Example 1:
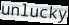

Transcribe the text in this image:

unlucky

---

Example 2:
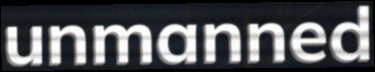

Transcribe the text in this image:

unmanned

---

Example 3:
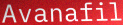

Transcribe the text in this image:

Avanafil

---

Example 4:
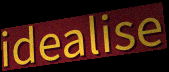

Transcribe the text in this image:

idealise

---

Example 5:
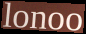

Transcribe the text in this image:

lonoo